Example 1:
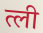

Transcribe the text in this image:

त्ली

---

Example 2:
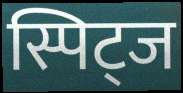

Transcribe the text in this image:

स्पिट्ज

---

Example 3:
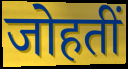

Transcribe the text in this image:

जोहतीं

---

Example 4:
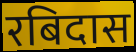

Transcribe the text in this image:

रबिदास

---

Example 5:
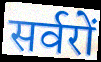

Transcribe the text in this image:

सर्वरों